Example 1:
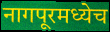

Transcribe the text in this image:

नागपूरमध्येच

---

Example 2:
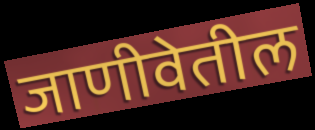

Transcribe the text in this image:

जाणीवेतील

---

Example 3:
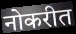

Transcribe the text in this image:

नोकरीत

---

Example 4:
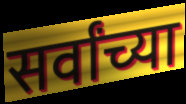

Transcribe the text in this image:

सर्वांच्या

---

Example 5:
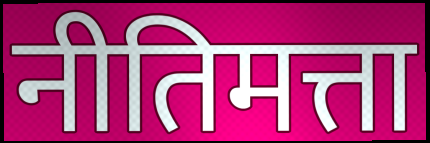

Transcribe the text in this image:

नीतिमत्ता